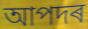
আপদৰ